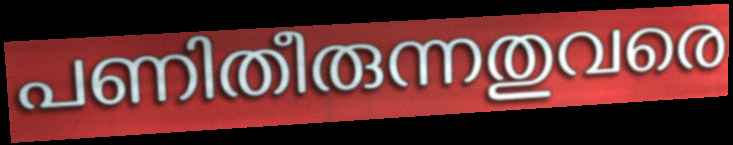
പണിതീരുന്നതുവരെ